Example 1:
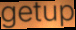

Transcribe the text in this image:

getup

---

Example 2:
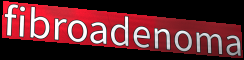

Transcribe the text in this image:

fibroadenoma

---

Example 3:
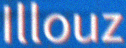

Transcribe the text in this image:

Illouz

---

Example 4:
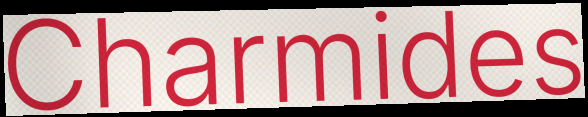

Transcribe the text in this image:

Charmides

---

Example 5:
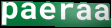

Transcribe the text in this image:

paeraa